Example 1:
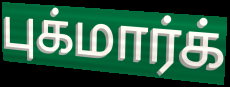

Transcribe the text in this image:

புக்மார்க்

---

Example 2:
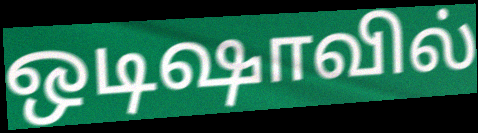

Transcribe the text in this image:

ஒடிஷாவில்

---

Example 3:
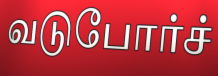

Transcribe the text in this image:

வடுபோர்ச்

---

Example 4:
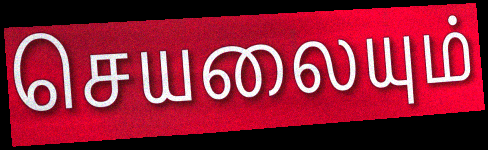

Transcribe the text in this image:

செயலையும்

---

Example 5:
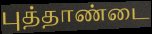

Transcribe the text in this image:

புத்தாண்டை